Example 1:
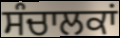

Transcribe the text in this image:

ਸੰਚਾਲਕਾਂ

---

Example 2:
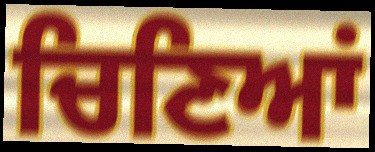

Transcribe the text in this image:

ਚਿਣਿਆਂ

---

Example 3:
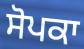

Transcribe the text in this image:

ਸੋਪਕਾ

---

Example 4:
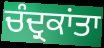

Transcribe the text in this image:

ਚੰਦ੍ਰਕਾਂਤਾ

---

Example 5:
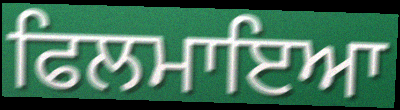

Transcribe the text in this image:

ਫਿਲਮਾਇਆ